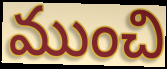
ముంచి